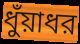
ধুঁয়াধর